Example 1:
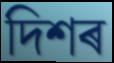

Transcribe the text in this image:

দিশৰ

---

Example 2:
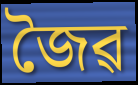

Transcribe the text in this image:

জৈৱ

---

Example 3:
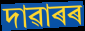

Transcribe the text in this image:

দাৱাৰৰ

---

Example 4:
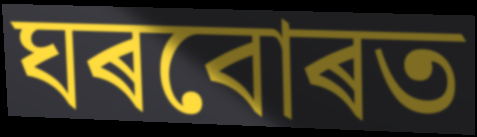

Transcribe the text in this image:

ঘৰবোৰত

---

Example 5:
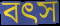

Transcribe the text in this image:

বৎস